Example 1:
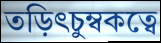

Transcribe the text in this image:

তড়িৎচুম্বকত্বে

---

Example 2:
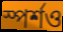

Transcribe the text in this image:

স্পর্শও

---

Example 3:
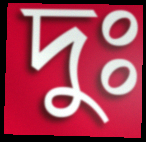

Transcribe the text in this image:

দুঃ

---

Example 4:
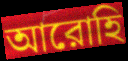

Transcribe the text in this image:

আরোহি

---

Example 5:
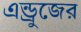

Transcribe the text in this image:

এন্ড্রুজের